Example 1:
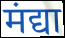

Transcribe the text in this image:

मंद्या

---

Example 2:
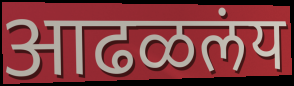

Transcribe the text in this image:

आढळलंय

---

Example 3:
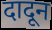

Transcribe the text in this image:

दादून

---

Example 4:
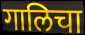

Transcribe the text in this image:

गालिचा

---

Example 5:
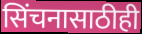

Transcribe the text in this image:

सिंचनासाठीही